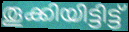
തൂക്കിയിട്ടിട്ട്